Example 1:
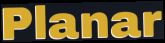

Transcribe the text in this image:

Planar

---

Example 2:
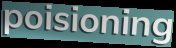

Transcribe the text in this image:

poisioning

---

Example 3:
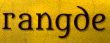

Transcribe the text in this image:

rangde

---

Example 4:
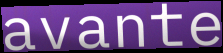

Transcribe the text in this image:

avante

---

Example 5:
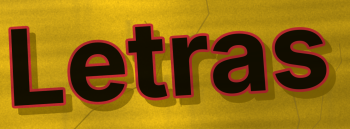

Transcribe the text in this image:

Letras